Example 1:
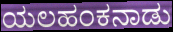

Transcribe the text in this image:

ಯಲಹಂಕನಾಡು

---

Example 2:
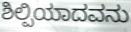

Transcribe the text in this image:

ಶಿಲ್ಪಿಯಾದವನು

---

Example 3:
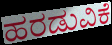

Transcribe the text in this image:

ಹರಡುವಿಕೆ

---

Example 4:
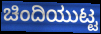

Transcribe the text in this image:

ಚಿಂದಿಯುಟ್ಟ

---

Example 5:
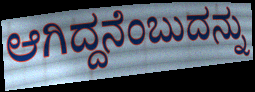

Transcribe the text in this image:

ಆಗಿದ್ದನೆಂಬುದನ್ನು